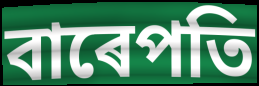
বাৰেপতি